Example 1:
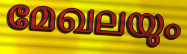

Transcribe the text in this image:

മേഖലയും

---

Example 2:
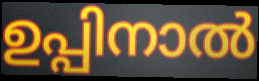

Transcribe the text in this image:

ഉപ്പിനാൽ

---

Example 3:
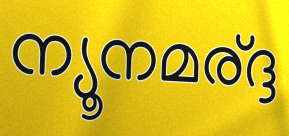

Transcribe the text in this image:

ന്യൂനമര്ദ്ദ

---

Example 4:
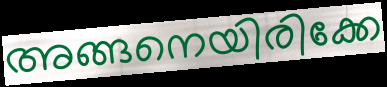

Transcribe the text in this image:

അങ്ങനെയിരിക്കേ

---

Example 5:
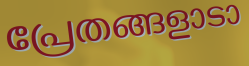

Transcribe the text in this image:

പ്രേതങ്ങളാടാ